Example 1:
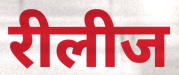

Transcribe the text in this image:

रीलीज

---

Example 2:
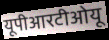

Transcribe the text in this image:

यूपीआरटीओयू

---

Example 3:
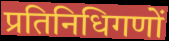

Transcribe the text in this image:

प्रतिनिधिगणों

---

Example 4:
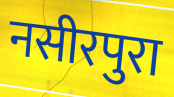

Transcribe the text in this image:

नसीरपुरा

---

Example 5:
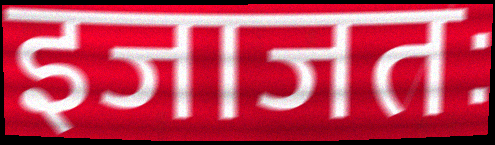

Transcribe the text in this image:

इजाजतः